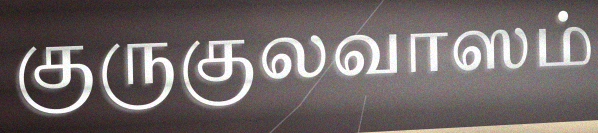
குருகுலவாஸம்